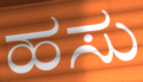
ಹಸು